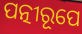
ପତ୍ନୀରୂପେ